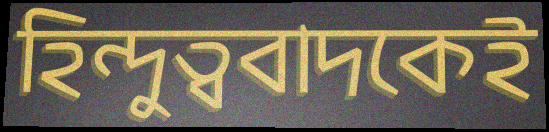
হিন্দুত্ববাদকেই